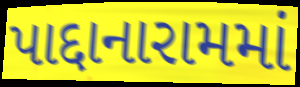
પાદ્દાનારામમાં